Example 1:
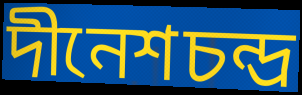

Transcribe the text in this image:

দীনেশচন্দ্র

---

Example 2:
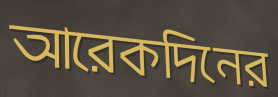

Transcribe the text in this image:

আরেকদিনের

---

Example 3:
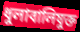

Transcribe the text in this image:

ধুলাবালিযুক্ত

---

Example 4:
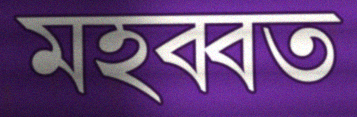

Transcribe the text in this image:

মহব্বত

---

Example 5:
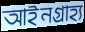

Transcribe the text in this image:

আইনগ্রাহ্য